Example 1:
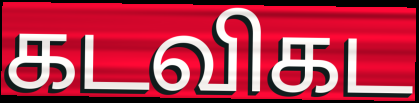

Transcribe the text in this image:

கடவிகட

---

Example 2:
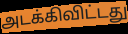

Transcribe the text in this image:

அடக்கிவிட்டது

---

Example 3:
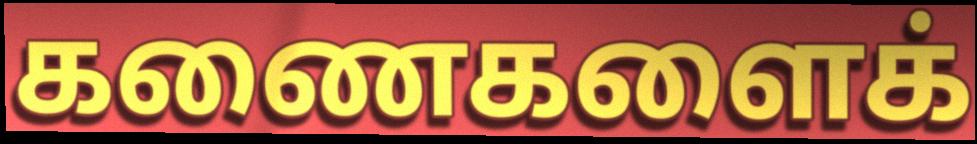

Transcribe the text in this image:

கணைகளைக்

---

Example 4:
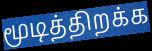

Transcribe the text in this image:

மூடித்திறக்க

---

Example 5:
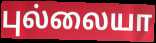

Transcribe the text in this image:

புல்லையா